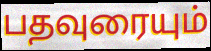
பதவுரையும்